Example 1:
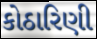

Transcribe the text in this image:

કોઠારિણી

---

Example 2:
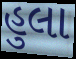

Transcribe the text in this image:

હુલા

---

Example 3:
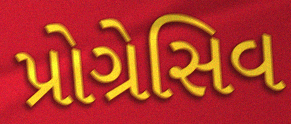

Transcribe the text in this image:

પ્રોગ્રેસિવ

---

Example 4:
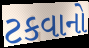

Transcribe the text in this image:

ટકવાનો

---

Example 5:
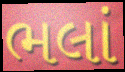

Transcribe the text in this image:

ભલાં